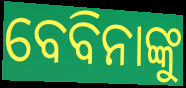
ବେବିନାଙ୍କୁ